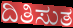
ದಿತಿಸುತ